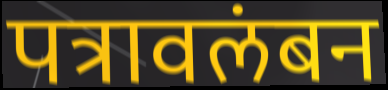
पत्रावलंबन